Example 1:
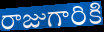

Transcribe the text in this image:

రాజుగారికి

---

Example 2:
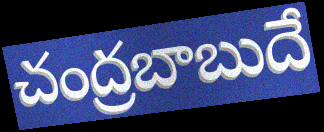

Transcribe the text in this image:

చంద్రబాబుదే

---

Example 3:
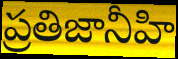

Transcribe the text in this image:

ప్రతిజానీహి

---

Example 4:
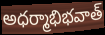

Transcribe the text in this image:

అధర్మాభిభవాత్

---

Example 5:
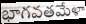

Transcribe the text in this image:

భాగవతమేళా